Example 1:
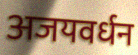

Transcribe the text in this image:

अजयवर्धन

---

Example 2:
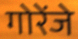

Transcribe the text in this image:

गोरेंजे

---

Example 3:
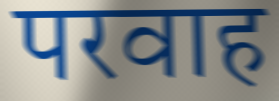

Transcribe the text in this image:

परवाह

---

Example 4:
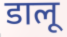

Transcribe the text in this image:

डालू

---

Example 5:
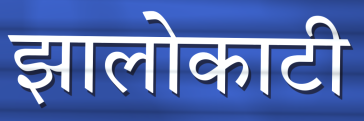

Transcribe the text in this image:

झालोकाटी